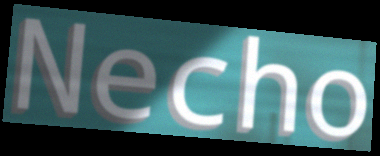
Necho